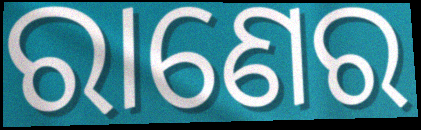
ରାଣେର